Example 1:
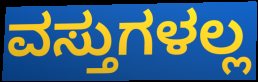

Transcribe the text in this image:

ವಸ್ತುಗಳಲ್ಲ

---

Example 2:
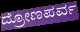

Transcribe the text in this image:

ದ್ರೋಣಪರ್ವ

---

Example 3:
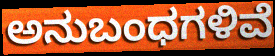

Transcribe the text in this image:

ಅನುಬಂಧಗಳಿವೆ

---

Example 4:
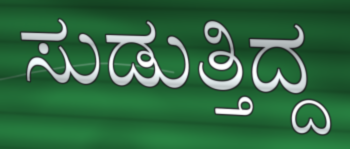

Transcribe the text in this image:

ಸುಡುತ್ತಿದ್ದ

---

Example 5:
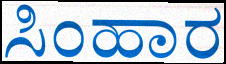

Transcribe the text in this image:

ಸಿಂಹಾರ